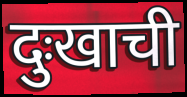
दुःखाची